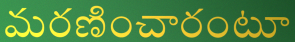
మరణించారంటూ